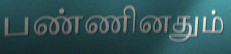
பண்ணினதும்